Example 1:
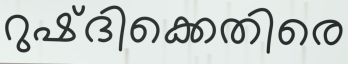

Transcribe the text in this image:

റുഷ്ദിക്കെതിരെ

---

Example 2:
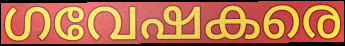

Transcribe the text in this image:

ഗവേഷകരെ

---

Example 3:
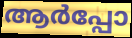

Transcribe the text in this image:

ആർപ്പോ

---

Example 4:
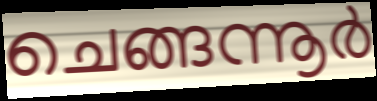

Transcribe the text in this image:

ചെങ്ങന്നൂർ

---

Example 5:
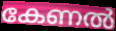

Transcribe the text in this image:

കേണൽ